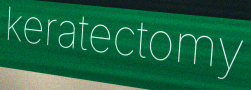
keratectomy